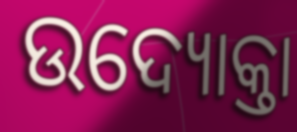
ଉଦ୍ୟୋକ୍ତା